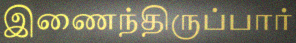
இணைந்திருப்பார்